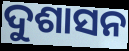
ଦୁଶାସନ